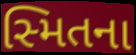
સ્મિતના